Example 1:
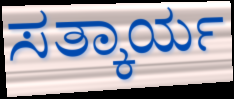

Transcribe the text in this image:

ಸತ್ಕಾರ್ಯ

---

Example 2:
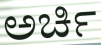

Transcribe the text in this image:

ಅರ್ಚಿ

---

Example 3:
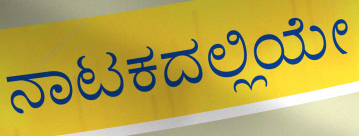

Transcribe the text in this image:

ನಾಟಕದಲ್ಲಿಯೇ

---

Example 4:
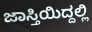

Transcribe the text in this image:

ಜಾಸ್ತಿಯಿದ್ದಲ್ಲಿ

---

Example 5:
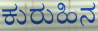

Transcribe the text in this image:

ಕುರುಹಿನ